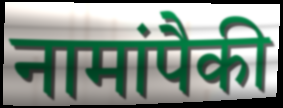
नामांपैकी